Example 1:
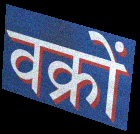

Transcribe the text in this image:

वक्रों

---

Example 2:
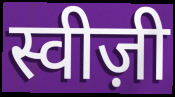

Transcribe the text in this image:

स्वीज़ी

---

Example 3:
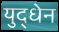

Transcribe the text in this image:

युद्धेन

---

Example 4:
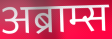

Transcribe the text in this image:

अब्राम्स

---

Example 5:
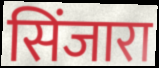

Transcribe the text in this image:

सिंजारा